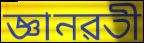
জ্ঞানৱতী